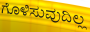
ಗೊಳಿಸುವುದಿಲ್ಲ